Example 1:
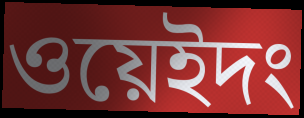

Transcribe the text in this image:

ওয়েইদং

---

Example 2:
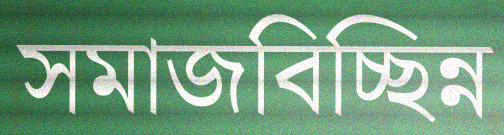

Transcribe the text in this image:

সমাজবিচ্ছিন্ন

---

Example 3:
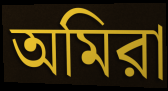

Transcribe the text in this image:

অমিরা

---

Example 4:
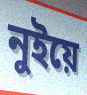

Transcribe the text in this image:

নুইয়ে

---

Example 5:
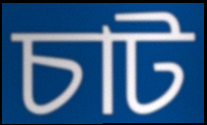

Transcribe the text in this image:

চাট